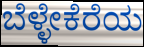
ಬೆಳ್ಳೇಕೆರೆಯ